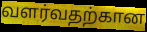
வளர்வதற்கான